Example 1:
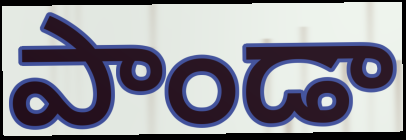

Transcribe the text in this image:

పాండా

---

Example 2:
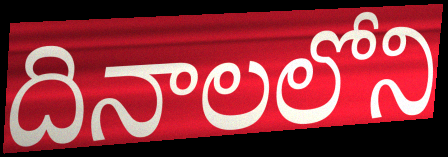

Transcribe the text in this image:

దినాలలోని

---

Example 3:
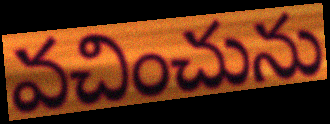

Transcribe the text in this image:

వచించును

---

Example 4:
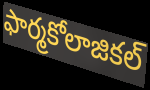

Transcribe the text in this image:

ఫార్మకోలాజికల్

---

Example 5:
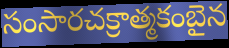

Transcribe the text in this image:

సంసారచక్రాత్మకంబైన